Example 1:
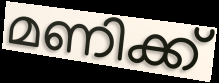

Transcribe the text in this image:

മണിക്ക്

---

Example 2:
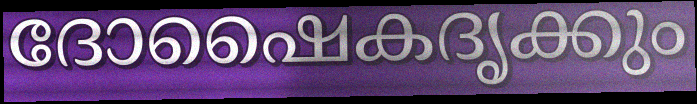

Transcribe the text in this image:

ദോഷൈകദൃക്കും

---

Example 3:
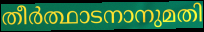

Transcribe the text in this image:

തീർത്ഥാടനാനുമതി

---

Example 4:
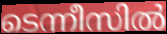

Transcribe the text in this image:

ടെന്നീസിൽ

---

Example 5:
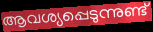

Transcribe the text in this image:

ആവശ്യപ്പെടുന്നുണ്ട്